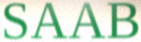
SAAB